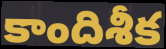
కాందిశీక